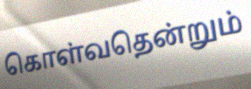
கொள்வதென்றும்